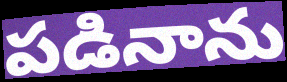
పడినాను